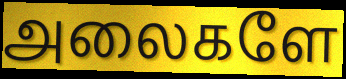
அலைகளே